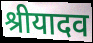
श्रीयादव